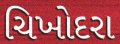
ચિખોદરા